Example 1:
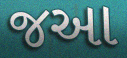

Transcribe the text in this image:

જઆ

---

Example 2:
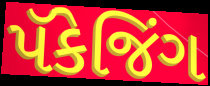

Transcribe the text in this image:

પૅકેજિંગ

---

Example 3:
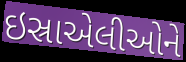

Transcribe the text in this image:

ઇસ્રાએલીઓને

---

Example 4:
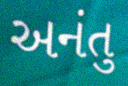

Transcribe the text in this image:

અનંતુ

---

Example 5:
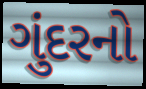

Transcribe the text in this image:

ગુંદરનો